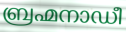
ബ്രഹ്മനാഡീ